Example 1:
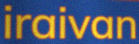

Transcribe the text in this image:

iraivan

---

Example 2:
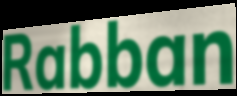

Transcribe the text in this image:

Rabban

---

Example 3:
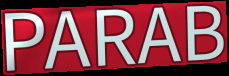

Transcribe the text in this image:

PARAB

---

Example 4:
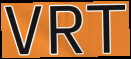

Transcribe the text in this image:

VRT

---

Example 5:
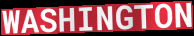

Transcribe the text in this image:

WASHINGTON